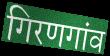
गिरणगांव